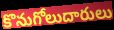
కొనుగోలుదారులు